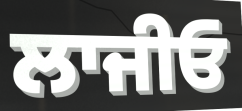
ਲਾਜੀਓ